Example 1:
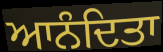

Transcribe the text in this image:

ਆਨੰਦਿਤਾ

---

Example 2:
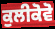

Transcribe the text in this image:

ਕੁਲੀਕੋਵੋ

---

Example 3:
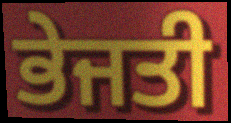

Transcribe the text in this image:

ਭੇਜਤੀ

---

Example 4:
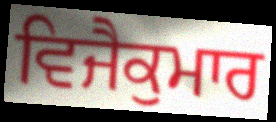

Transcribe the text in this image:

ਵਿਜੈਕੁਮਾਰ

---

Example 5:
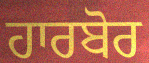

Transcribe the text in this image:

ਹਾਰਬੋਰ